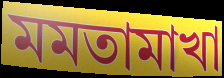
মমতামাখা